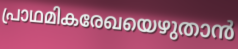
പ്രാഥമികരേഖയെഴുതാൻ